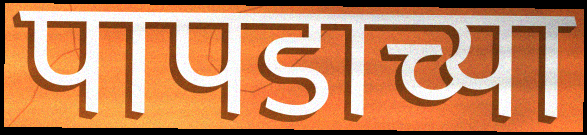
पापडाच्या